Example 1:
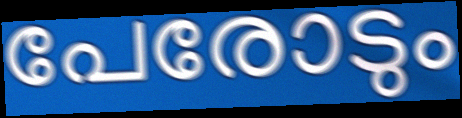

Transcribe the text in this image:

പേരോടും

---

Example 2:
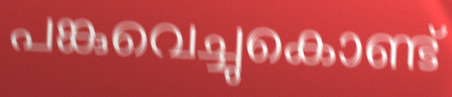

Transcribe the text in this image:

പങ്കുവെച്ചുകൊണ്ട്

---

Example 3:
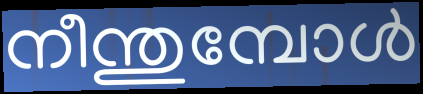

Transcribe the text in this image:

നീന്തുമ്പോൾ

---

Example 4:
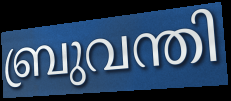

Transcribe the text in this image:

ബ്രുവന്തി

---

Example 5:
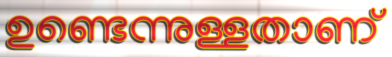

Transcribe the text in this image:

ഉണ്ടെന്നുള്ളതാണ്